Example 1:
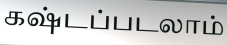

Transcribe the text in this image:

கஷ்டப்படலாம்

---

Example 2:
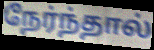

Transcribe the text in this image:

நேர்ந்தால்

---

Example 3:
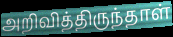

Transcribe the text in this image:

அறிவித்திருந்தாள்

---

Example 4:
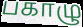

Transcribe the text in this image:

பகாழு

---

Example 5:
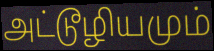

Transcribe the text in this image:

அட்டூழியமும்